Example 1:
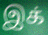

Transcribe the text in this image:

இக்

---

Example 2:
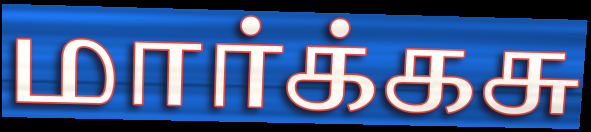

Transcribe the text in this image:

மார்க்கசு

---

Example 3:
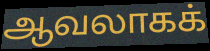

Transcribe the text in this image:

ஆவலாகக்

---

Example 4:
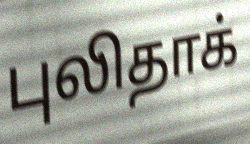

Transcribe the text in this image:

புலிதாக்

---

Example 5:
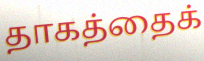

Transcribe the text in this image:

தாகத்தைக்